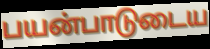
பயன்பாடுடைய